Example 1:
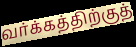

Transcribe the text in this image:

வர்க்கத்திற்குத்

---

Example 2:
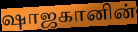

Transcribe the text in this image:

ஷாஜகானின்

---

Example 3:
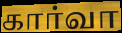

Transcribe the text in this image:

கார்வா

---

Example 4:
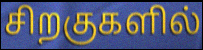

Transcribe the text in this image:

சிறகுகளில்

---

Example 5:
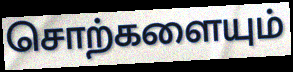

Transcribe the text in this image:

சொற்களையும்